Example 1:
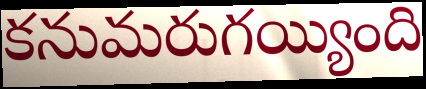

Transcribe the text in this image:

కనుమరుగయ్యింది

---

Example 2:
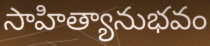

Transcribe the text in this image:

సాహిత్యానుభవం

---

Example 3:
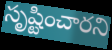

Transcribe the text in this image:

సృష్టించారని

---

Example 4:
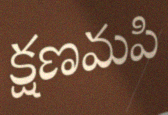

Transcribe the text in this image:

క్షణమపి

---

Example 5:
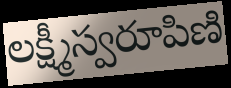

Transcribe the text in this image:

లక్ష్మీస్వరూపిణి